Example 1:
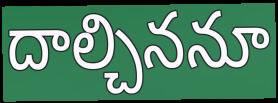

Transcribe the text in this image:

దాల్చిననూ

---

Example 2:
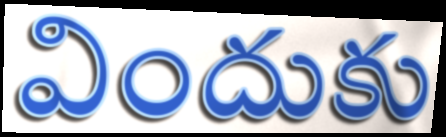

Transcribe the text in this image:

విందుకు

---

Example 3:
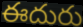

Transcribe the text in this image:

ఈదురు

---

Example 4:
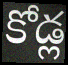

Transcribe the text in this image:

కోడ్ల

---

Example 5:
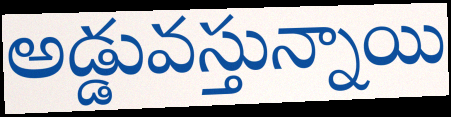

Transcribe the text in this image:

అడ్డువస్తున్నాయి